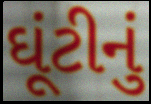
ઘૂંટીનું